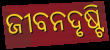
ଜୀବନଦୃଷ୍ଟି